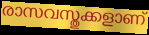
രാസവസ്തുക്കളാണ്